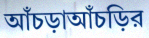
আঁচড়াআঁচড়ির